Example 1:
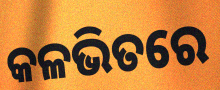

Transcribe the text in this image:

କଳଭିତରେ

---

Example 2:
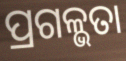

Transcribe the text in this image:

ପ୍ରଗଳ୍ଭତା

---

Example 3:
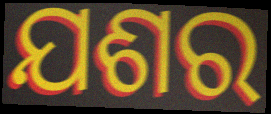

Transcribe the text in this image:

ଯଶର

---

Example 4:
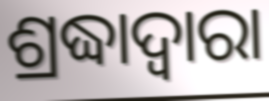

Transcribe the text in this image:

ଶ୍ରଦ୍ଧାଦ୍ୱାରା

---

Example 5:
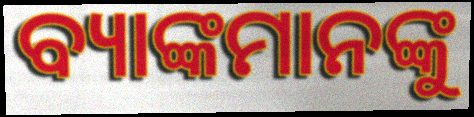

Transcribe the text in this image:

ବ୍ୟାଙ୍କମାନଙ୍କୁ